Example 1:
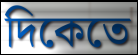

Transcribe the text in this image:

দিকেতে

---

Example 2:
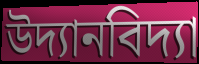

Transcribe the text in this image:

উদ্যানবিদ্যা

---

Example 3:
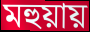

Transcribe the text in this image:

মহুয়ায়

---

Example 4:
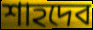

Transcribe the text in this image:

শাহদেব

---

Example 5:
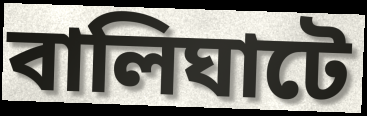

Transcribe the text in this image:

বালিঘাটে